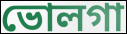
ভোলগা